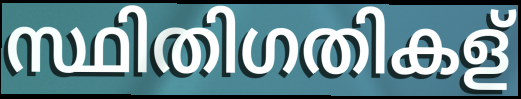
സ്ഥിതിഗതികള്